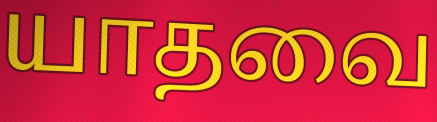
யாதவை